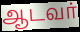
ஆடவர்